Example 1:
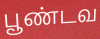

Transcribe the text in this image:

பூண்டவ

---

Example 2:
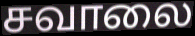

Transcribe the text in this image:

சவாலை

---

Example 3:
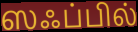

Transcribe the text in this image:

ஸஃப்பில்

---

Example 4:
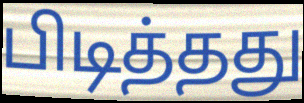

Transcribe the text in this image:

பிடித்தது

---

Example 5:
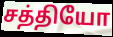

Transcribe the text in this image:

சத்தியோ